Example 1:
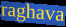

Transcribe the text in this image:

raghava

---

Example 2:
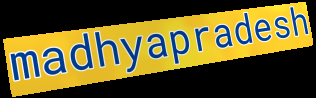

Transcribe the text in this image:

madhyapradesh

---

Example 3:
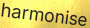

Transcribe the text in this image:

harmonise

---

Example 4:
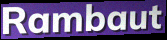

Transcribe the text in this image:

Rambaut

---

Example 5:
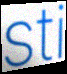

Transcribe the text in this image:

sti